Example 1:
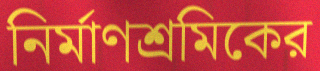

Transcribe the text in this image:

নির্মাণশ্রমিকের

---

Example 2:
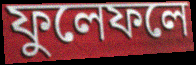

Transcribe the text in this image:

ফুলেফলে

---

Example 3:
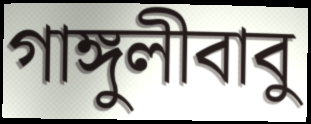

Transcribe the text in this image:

গাঙ্গুলীবাবু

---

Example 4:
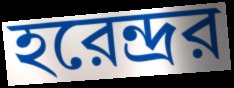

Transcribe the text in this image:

হরেন্দ্রর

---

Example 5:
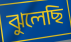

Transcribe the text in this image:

ঝুলেছি